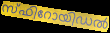
സ്ഫിറോയിഡൽ